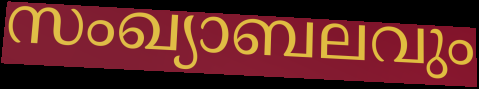
സംഖ്യാബലവും